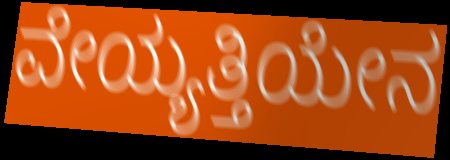
ವೇಯ್ಯತ್ತಿಯೇನ